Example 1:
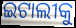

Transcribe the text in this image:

ଇଟାଲୀକୁ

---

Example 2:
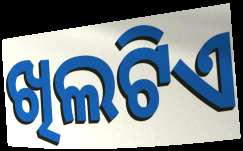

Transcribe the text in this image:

ଖିଲଟିଏ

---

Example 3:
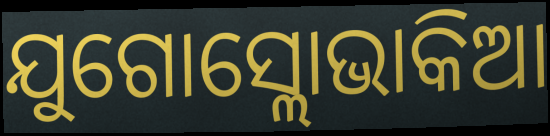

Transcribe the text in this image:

ଯୁଗୋସ୍ଲୋଭାକିଆ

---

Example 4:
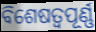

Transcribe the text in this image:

ବିଶେଷତ୍ୱପୂର୍ଣ୍ଣ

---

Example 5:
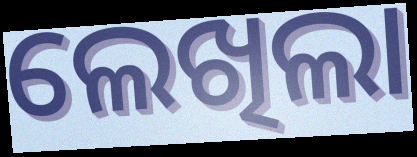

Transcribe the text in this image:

ଲେଖିଲା